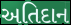
અતિદાન